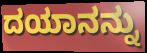
ದಯಾನನ್ನು